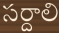
సర్దాలి